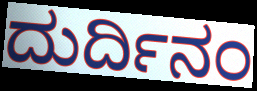
ದುರ್ದಿನಂ